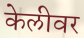
केलीवर